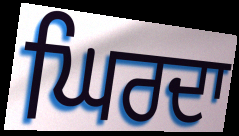
ਘਿਰਦਾ